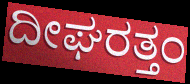
ದೀಘರತ್ತಂ